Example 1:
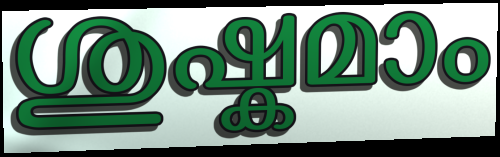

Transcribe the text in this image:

ശുഷ്കമാം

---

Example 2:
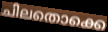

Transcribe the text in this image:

ചിലതൊക്കെ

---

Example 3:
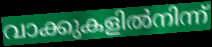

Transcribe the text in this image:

വാക്കുകളിൽനിന്ന്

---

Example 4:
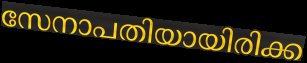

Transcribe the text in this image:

സേനാപതിയായിരിക്ക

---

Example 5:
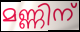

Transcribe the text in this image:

മണ്ണിന്